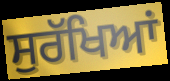
ਸੁਰੱਖਿਆਂ